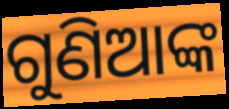
ଗୁଣିଆଙ୍କ